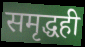
समृद्धही